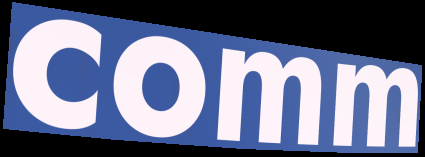
comm